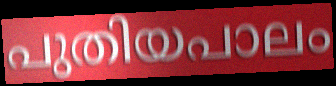
പുതിയപാലം